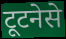
टूटनेसे